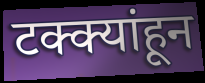
टक्क्यांहून